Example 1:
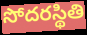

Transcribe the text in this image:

సోదరస్థితి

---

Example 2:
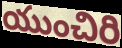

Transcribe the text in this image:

యుంచిరి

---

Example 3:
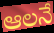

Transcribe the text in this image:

ఆలనే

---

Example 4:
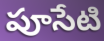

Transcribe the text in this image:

పూసేటి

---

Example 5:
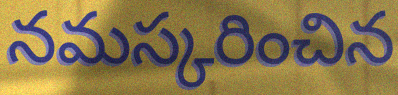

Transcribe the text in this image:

నమస్కరించిన